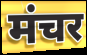
मंचर